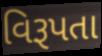
વિરૂપતા